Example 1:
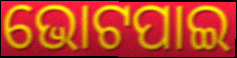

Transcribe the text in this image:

ଭୋଟପାଇ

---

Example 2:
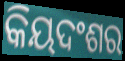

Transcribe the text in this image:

କିୟଦଂଶର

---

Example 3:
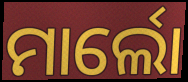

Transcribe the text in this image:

ମାର୍ଲୋ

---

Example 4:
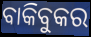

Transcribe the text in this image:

ବାକିବୁକର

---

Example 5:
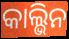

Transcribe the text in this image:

କାଲ୍ଭିନ